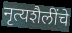
नृत्यशैलींचे